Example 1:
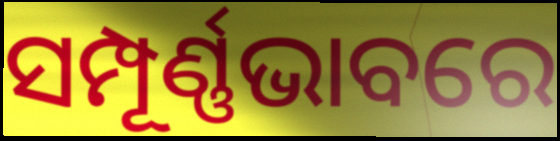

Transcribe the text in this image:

ସମ୍ପୂର୍ଣ୍ଣଭାବରେ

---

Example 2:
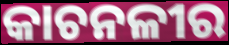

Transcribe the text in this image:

କାଚନଳୀର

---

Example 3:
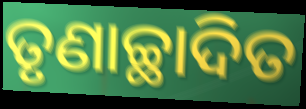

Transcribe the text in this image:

ତୃଣାଚ୍ଛାଦିତ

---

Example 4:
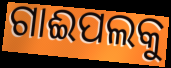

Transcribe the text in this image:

ଗାଈପଲକୁ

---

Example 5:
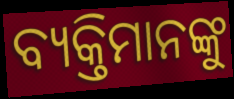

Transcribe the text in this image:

ବ୍ୟକ୍ତିମାନଙ୍କୁ